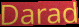
Darad